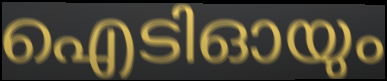
ഐടിഓയും